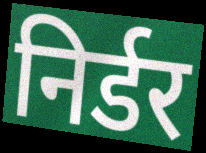
निर्डर